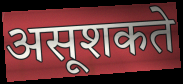
असूशकते